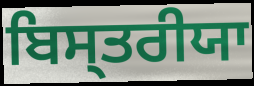
ਬਿਸ੍ਤਰੀਯਾ